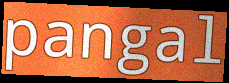
pangal